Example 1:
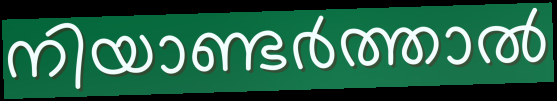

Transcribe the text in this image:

നിയാണ്ടർത്താൽ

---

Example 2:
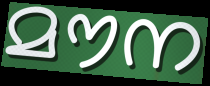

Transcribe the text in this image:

മൗന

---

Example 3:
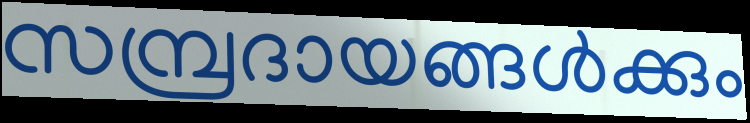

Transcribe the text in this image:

സമ്പ്രദായങ്ങൾക്കും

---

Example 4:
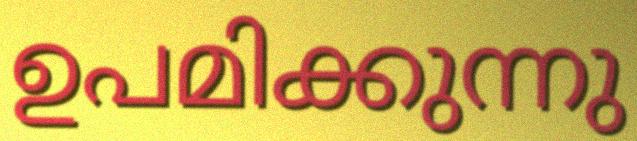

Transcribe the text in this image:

ഉപമിക്കുന്നു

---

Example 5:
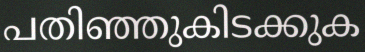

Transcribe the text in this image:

പതിഞ്ഞുകിടക്കുക